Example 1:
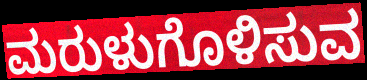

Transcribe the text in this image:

ಮರುಳುಗೊಳಿಸುವ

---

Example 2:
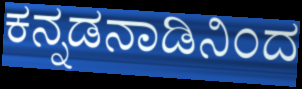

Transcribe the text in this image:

ಕನ್ನಡನಾಡಿನಿಂದ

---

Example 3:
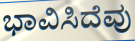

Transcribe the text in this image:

ಭಾವಿಸಿದೆವು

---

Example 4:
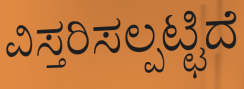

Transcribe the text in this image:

ವಿಸ್ತರಿಸಲ್ಪಟ್ಟಿದೆ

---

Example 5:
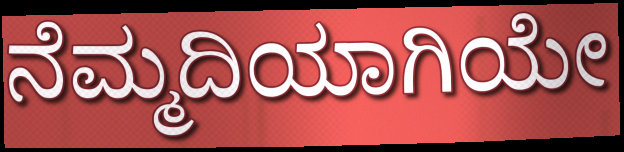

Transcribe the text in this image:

ನೆಮ್ಮದಿಯಾಗಿಯೇ